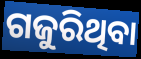
ଗଜୁରିଥିବା